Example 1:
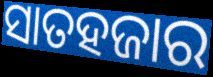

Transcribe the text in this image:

ସାତହଜାର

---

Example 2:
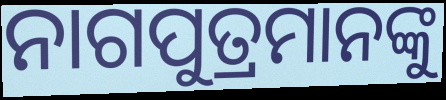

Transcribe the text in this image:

ନାଗପୁତ୍ରମାନଙ୍କୁ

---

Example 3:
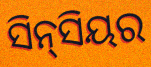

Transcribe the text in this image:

ସିନ୍‌ସିୟର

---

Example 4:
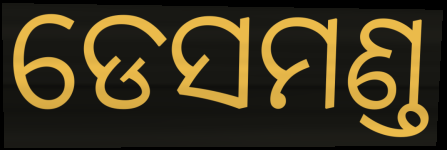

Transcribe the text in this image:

ଡେସମଣ୍ଡ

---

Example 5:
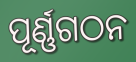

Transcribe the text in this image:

ପୂର୍ଣ୍ଣଗଠନ